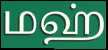
மஹ்